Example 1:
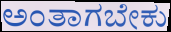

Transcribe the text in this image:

ಅಂತಾಗಬೇಕು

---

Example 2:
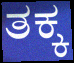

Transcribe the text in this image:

ತಕ್ಕ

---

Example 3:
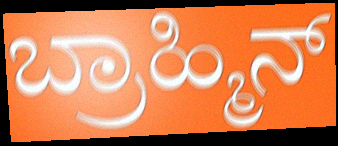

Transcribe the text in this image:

ಬ್ರಾಹ್ಮಿನ್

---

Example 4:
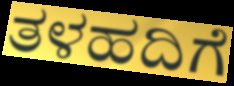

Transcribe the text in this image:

ತಳಹದಿಗೆ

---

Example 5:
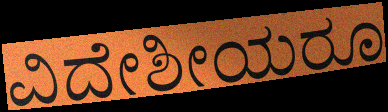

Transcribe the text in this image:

ವಿದೇಶೀಯರೂ